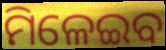
ମିଳେଇବ